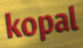
kopal